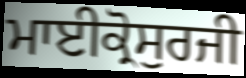
ਮਾਈਕ੍ਰੋਸੁਰਜੀ